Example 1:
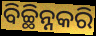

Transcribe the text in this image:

ବିଚ୍ଛିନ୍ନକରି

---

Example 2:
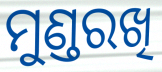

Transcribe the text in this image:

ମୁଣ୍ଡରଖି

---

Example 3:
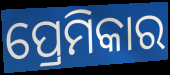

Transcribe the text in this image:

ପ୍ରେମିକାର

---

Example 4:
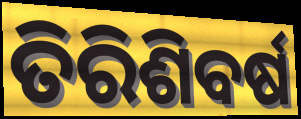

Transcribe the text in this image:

ତିରିଶିବର୍ଷ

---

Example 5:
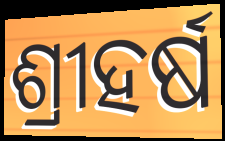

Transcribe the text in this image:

ଶ୍ରୀହର୍ଷ